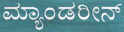
ಮ್ಯಾಂಡರೀನ್